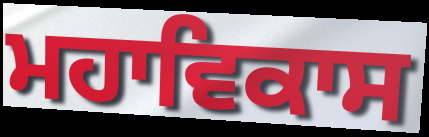
ਮਹਾਵਿਕਾਸ